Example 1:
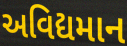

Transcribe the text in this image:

અવિદ્યમાન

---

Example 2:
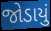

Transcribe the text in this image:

જોડાયું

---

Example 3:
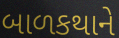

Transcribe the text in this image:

બાળકથાને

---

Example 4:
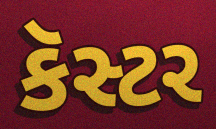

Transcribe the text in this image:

કૅસ્ટર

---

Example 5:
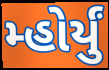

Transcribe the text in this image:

મ્હોર્યું